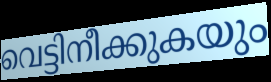
വെട്ടിനീക്കുകയും